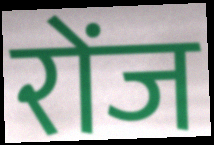
रोंज